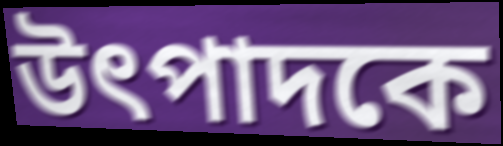
উৎপাদকে